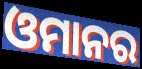
ଓମାନର